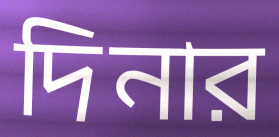
দিনার